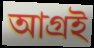
আগ্রই